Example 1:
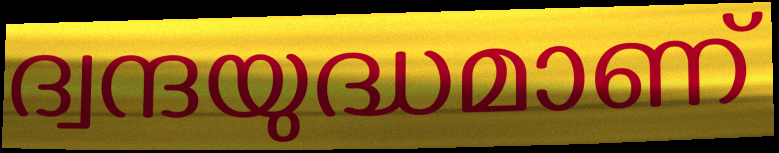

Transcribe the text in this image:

ദ്വന്ദയുദ്ധമാണ്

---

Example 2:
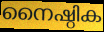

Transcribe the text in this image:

നൈഷ്ഠിക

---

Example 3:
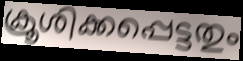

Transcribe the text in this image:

ക്രൂശിക്കപ്പെട്ടതും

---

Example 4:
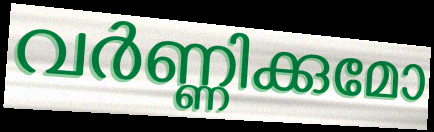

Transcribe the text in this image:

വർണ്ണിക്കുമോ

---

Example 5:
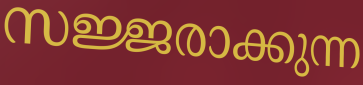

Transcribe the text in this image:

സജ്ജരാക്കുന്ന